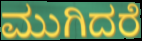
ಮುಗಿದರೆ